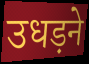
उधड़ने